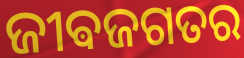
ଜୀଵଜଗତର